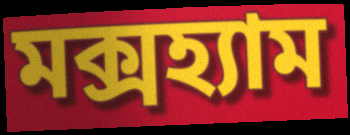
মক্সহ্যাম